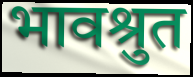
भावश्रुत